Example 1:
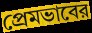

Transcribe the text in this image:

প্রেমভাবের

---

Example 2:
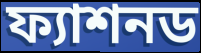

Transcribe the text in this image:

ফ্যাশনড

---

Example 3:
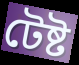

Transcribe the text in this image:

টেষ্ট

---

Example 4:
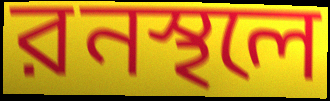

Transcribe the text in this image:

রনস্থলে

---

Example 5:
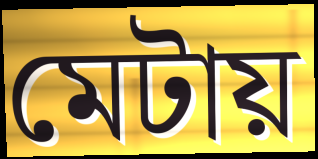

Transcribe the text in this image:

মেটায়